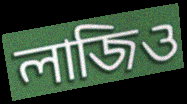
লাজিও